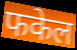
फकेल